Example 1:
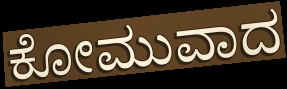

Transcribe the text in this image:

ಕೋಮುವಾದ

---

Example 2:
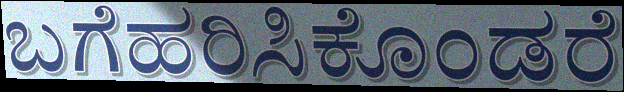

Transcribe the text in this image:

ಬಗೆಹರಿಸಿಕೊಂಡರೆ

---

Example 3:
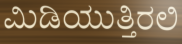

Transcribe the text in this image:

ಮಿಡಿಯುತ್ತಿರಲಿ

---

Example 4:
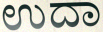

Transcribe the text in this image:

ಉದಾ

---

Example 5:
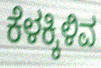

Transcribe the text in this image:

ಕೆಳಕ್ಕಿಳಿವ